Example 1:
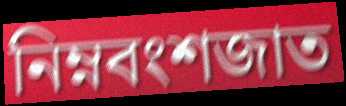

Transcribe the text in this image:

নিম্নবংশজাত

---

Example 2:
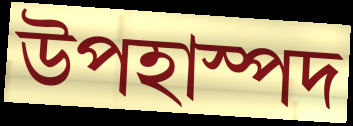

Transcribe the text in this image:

উপহাস্পদ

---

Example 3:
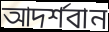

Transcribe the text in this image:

আদর্শবান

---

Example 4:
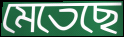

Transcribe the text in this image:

মেতেছে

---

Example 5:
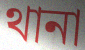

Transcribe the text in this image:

থানা